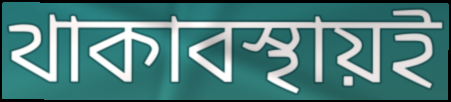
থাকাবস্থায়ই